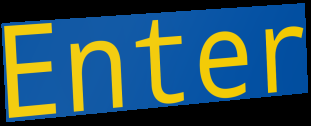
Enter